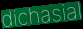
dichasial